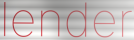
lender